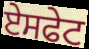
ਏਸਫੇਟ